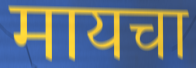
मायचा